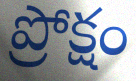
ప్రోక్షం